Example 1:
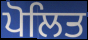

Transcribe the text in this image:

ਪੋਲਿਤ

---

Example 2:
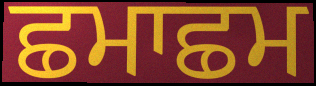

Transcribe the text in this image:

ਛਮਾਛਮ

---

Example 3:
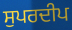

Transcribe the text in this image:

ਸੁਪਰਦੀਪ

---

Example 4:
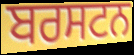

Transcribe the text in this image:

ਬਰਸਟਨ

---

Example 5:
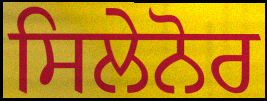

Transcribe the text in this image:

ਸਿਲੇਨੋਰ